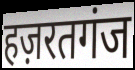
हज़रतगंज